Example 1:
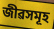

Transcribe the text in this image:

জীৱসমূহ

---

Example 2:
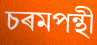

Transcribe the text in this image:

চৰমপন্থী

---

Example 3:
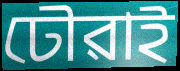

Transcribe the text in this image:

ঢৌৱাই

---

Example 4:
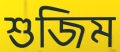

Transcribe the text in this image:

শুজিম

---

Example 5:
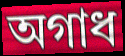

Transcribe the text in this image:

অগাধ